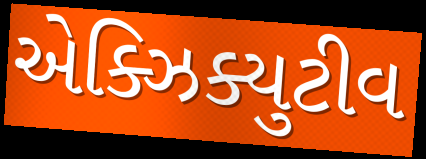
એક્ઝિક્યુટીવ